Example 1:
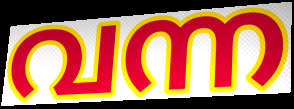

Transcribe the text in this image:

വന്ന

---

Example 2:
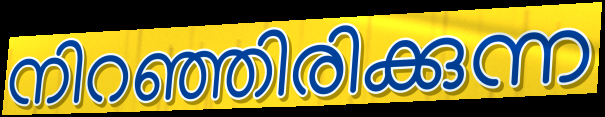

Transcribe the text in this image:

നിറഞ്ഞിരിക്കുന്ന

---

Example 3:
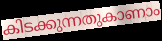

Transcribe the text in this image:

കിടക്കുന്നതുകാണാം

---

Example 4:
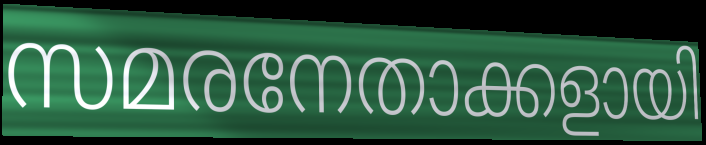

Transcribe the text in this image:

സമരനേതാക്കളായി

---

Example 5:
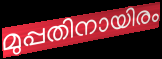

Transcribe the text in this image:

മുപ്പതിനായിരം